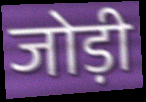
जोड़ी